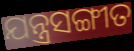
ଯନ୍ତ୍ରସଙ୍ଗୀତ